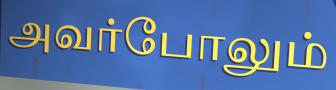
அவர்போலும்